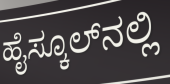
ಹೈಸ್ಕೂಲ್‌ನಲ್ಲಿ